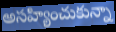
అసహ్యించుకున్నా